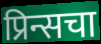
प्रिन्सचा